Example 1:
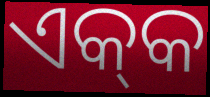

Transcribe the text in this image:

ଏକ୍‍କ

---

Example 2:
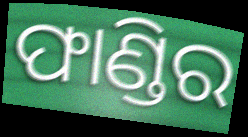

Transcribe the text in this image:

ଫାଣ୍ଡିର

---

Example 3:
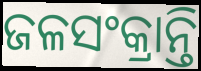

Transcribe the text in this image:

ଜଳସଂକ୍ରାନ୍ତି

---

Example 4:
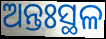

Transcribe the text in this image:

ଅନ୍ତଃସ୍ଥଳ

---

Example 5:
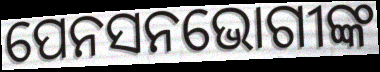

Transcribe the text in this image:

ପେନସନଭୋଗୀଙ୍କ